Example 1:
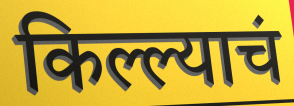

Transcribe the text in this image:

किल्ल्याचं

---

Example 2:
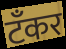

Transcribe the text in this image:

टँकर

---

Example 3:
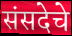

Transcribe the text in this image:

संसदेचे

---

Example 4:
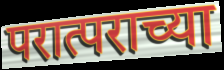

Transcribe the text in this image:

परात्पराच्या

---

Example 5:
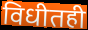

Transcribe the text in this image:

विधीतही